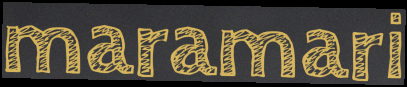
maramari